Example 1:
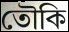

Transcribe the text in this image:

তৌকি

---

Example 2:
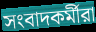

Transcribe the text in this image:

সংবাদকর্মীরা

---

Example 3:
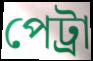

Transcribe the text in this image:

পেট্রা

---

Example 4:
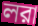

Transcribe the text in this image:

লরা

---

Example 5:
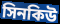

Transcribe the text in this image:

সিনকিউ